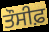
ਤੌਸੀਫ਼